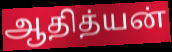
ஆதித்யன்